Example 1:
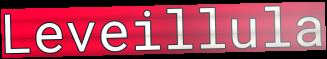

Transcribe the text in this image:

Leveillula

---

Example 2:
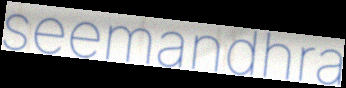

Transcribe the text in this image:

seemandhra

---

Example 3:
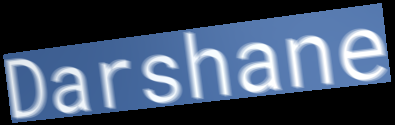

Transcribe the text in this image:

Darshane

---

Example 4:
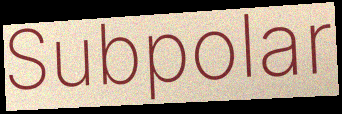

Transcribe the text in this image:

Subpolar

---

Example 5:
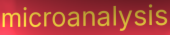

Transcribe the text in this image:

microanalysis